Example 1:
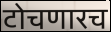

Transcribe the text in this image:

टोचणारच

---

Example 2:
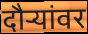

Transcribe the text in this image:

दौऱ्यांवर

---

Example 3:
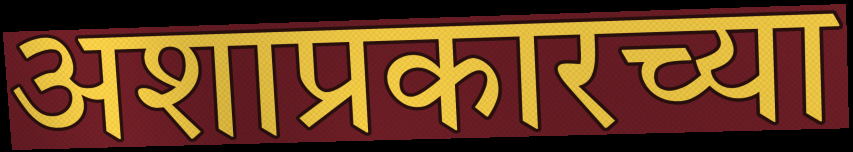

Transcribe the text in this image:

अशाप्रकारच्या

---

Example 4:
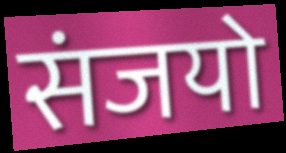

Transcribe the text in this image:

संजयो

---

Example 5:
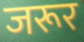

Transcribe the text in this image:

जरूर